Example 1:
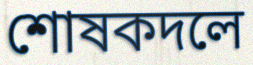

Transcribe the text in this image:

শোষকদলে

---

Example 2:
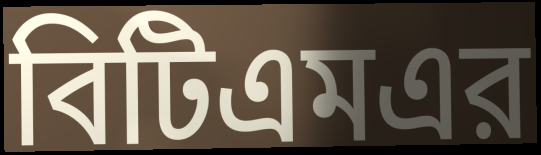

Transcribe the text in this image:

বিটিএমএর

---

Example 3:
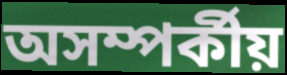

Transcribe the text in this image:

অসম্পর্কীয়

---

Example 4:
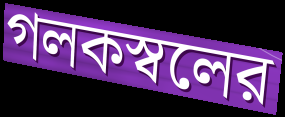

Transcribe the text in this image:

গলকস্বলের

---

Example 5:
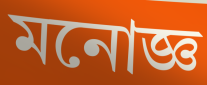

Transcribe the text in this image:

মনোজ্ঞ